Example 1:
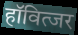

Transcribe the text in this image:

हॉवित्जर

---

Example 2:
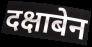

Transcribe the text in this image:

दक्षाबेन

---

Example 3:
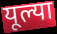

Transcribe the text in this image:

यूल्या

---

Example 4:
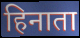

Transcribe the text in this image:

हिनाता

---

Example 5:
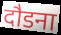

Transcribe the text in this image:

दौडना